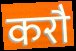
करौ